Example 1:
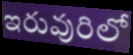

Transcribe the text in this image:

ఇరువురిలో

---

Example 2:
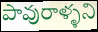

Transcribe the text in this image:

పావురాళ్ళని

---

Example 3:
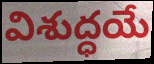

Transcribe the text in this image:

విశుద్ధయే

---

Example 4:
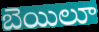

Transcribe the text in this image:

బెయిలూ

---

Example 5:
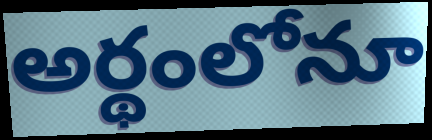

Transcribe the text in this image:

అర్థంలోనూ